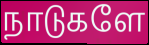
நாடுகளே